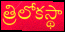
త్రిలోకస్థా